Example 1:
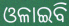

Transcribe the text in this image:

ଓଳାଇବି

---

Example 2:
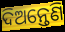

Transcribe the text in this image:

ଦିଅନ୍ତେଣି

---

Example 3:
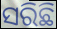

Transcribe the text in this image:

ସରିଛି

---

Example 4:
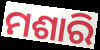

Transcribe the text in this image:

ମଶାରି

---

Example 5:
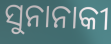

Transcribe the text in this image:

ସୁନାନାକୀ